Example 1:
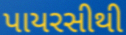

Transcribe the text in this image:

પાયરસીથી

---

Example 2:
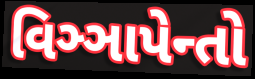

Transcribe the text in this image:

વિઞ્ઞાપેન્તો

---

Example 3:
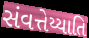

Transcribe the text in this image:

સંવત્તેય્યાતિ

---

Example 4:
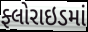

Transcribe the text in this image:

ફ્લોરાઇડમાં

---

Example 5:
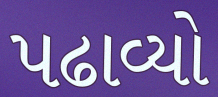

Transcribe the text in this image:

પઢાવ્યો